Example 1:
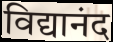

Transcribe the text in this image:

विद्यानंद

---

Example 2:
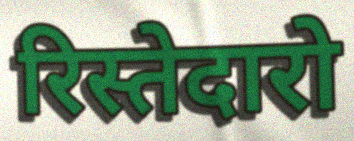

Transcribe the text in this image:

रिस्तेदारो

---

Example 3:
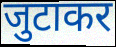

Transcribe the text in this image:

जुटाकर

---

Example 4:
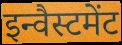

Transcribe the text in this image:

इन्वैस्टमेंट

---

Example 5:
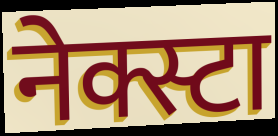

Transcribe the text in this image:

नेक्स्टा